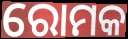
ରୋମକ